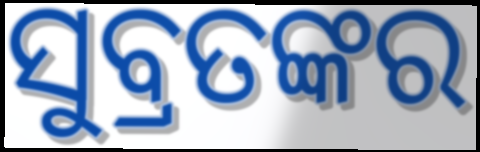
ସୁବ୍ରତଙ୍କର